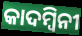
କାଦମ୍ୱିନୀ